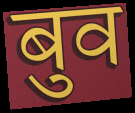
बुव